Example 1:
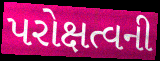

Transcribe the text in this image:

પરોક્ષત્વની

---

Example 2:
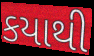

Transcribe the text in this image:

કયાથી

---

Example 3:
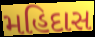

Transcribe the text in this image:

મહિદાસ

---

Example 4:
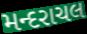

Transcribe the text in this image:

મન્દરાચલ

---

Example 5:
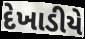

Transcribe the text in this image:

દેખાડીયે